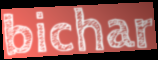
bichar